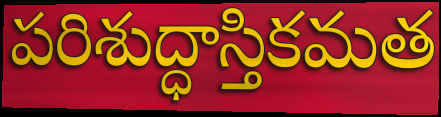
పరిశుద్ధాస్తికమత